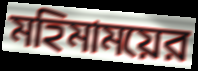
মহিমাময়ের